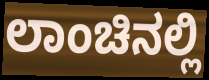
ಲಾಂಚಿನಲ್ಲಿ